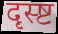
दृस्ष्ट